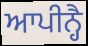
ਆਪੀਨ੍ਹ੍ਹੈ